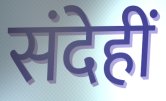
संदेहीं